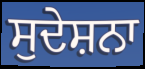
ਸੁਦੇਸ਼ਨਾ